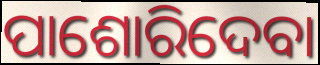
ପାଶୋରିଦେବା